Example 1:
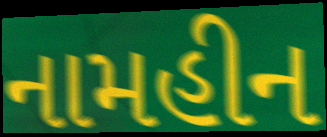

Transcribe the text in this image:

નામહીન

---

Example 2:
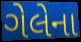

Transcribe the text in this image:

ગેલેના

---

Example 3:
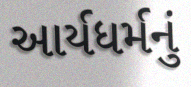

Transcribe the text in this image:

આર્યધર્મનું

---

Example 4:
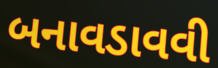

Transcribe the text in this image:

બનાવડાવવી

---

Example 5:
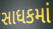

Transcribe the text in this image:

સાધકમાં